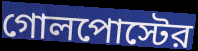
গোলপোস্টের